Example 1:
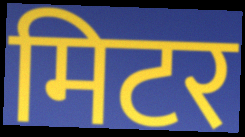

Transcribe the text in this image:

मिटर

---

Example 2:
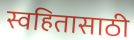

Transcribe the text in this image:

स्वहितासाठी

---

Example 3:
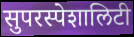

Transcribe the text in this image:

सुपरस्पेशालिटी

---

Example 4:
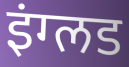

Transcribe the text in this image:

इंग्लड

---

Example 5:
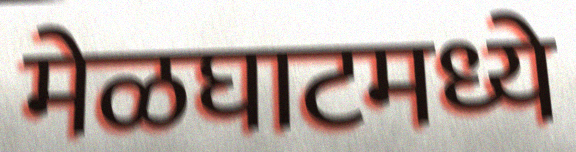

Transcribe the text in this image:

मेळघाटमध्ये